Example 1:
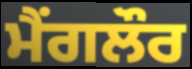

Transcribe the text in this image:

ਮੈਂਗਲੌਰ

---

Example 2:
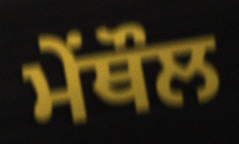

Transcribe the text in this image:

ਮੇਂਥੌਲ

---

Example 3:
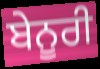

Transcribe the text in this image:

ਬੇਨੂਰੀ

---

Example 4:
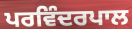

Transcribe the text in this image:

ਪਰਵਿੰਦਰਪਾਲ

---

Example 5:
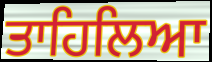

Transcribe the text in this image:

ਤਾਹਿਲਿਆ